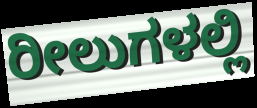
ರೀಲುಗಳಲ್ಲಿ